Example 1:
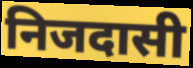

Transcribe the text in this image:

निजदासी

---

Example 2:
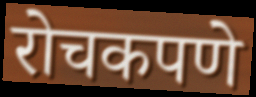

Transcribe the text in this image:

रोचकपणे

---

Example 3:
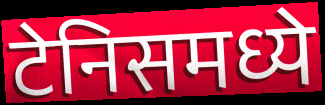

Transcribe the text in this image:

टेनिसमध्ये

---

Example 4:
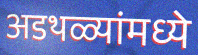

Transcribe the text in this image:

अडथळ्यांमध्ये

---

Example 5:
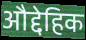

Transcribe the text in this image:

औद्देहिक